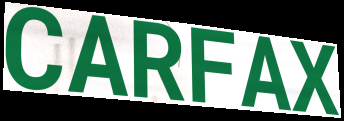
CARFAX